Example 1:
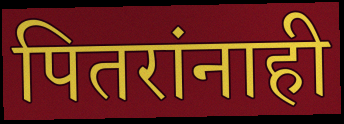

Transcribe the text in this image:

पितरांनाही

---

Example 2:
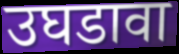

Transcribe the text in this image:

उघडावा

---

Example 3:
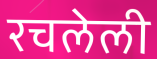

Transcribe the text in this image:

रचलेली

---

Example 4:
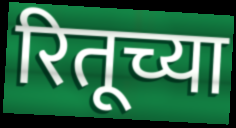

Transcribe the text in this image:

रितूच्या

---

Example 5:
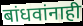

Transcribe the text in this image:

बांधवांनाही